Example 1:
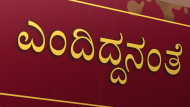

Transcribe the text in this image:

ಎಂದಿದ್ದನಂತೆ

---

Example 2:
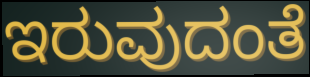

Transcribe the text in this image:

ಇರುವುದಂತೆ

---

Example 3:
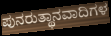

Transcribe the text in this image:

ಪುನರುತ್ಥಾನವಾದಿಗಳ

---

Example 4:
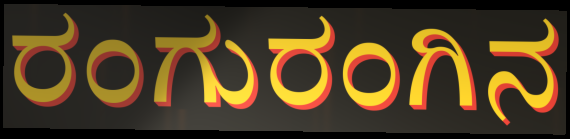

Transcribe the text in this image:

ರಂಗುರಂಗಿನ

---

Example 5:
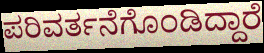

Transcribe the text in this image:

ಪರಿವರ್ತನೆಗೊಂಡಿದ್ದಾರೆ